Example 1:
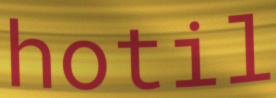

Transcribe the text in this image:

hotil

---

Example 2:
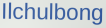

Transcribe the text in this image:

Ilchulbong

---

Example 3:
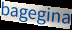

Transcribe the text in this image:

bagegina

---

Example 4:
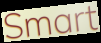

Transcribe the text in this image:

Smart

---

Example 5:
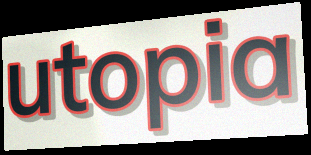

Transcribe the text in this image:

utopia